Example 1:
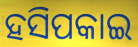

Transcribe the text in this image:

ହସିପକାଇ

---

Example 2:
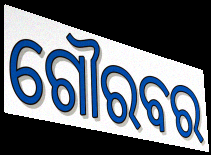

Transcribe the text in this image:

ଗୌରବର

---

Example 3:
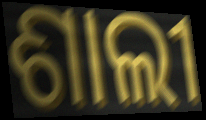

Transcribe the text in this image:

ଶାଲୀ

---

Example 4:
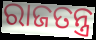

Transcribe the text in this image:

ରାଜତନ୍ତ୍ର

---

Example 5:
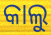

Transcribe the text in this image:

କାଲୁ